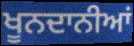
ਖੂਨਦਾਨੀਆਂ